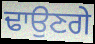
ਢਾਉਣਗੇ